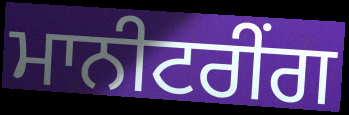
ਮਾਨੀਟਰੀਂਗ